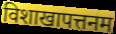
विशाखापत्तनम